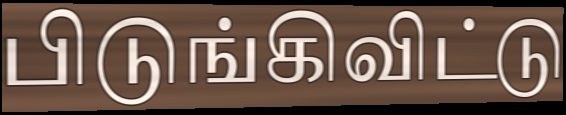
பிடுங்கிவிட்டு